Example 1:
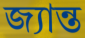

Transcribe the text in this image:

জ্যান্ত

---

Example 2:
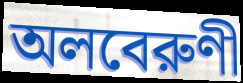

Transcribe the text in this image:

অলবেরুণী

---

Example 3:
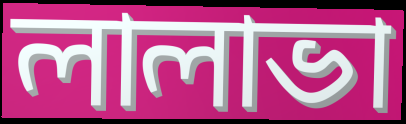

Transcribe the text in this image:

লালাভা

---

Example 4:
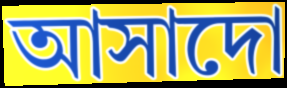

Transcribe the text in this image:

আসাদো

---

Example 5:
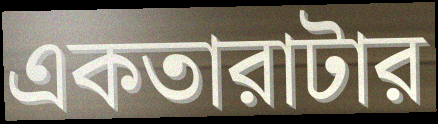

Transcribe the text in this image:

একতারাটার